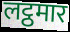
लट्ठमार